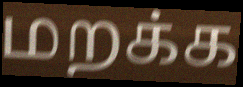
மறக்க